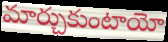
మార్చుకుంటాయో